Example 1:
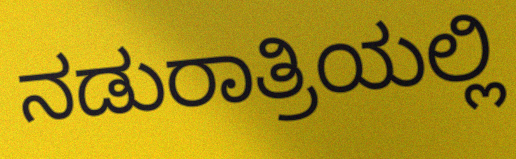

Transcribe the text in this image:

ನಡುರಾತ್ರಿಯಲ್ಲಿ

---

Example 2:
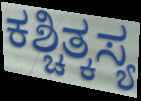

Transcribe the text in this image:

ಕಶ್ಚಿತ್ಕಸ್ಯ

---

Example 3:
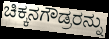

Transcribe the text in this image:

ಚಿಕ್ಕನಗೌಡ್ರರನ್ನು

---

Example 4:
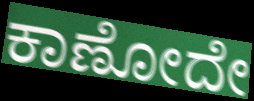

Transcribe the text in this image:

ಕಾಣೋದೇ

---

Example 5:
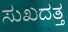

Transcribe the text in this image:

ಸುಖದತ್ತ